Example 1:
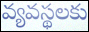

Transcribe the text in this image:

వ్యవస్థలకు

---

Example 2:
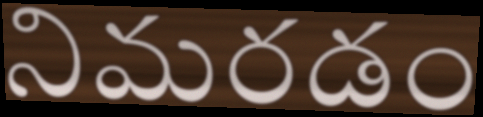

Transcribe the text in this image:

నిమరడం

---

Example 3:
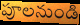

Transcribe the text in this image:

పూలనుండి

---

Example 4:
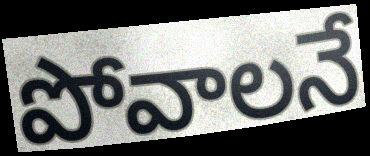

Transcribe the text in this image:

పోవాలనే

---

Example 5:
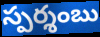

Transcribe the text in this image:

స్పర్శంబు